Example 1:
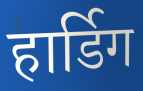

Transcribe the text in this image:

हार्डिग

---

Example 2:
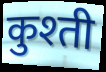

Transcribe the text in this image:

कुश्‍ती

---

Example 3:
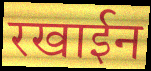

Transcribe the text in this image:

रखाईन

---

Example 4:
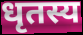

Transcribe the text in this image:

धृतस्य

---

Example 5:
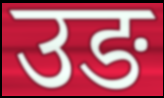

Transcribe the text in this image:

उङ